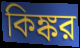
কিঙ্কর